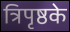
त्रिपृष्ठके